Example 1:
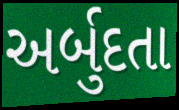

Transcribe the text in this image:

અર્બુદતા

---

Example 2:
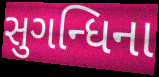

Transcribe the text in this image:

સુગન્ધિના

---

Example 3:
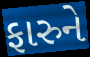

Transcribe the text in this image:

ફારુને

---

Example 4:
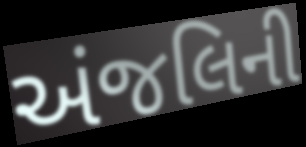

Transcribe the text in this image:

અંજલિની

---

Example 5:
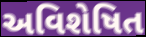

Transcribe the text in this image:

અવિશેષિત